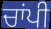
ਚਾਂਪੀ